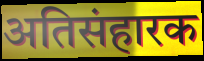
अतिसंहारक